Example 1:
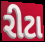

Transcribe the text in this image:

રીટા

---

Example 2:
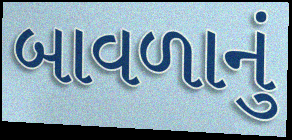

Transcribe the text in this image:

બાવળાનું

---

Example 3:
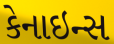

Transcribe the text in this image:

કેનાઇન્સ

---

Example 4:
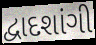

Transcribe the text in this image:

દ્વાદશાંગી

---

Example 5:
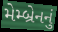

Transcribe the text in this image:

મેમ્બ્રેનનું